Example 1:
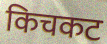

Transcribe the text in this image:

किचकट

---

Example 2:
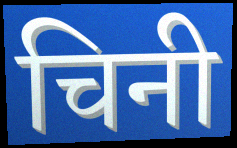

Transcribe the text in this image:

चिनी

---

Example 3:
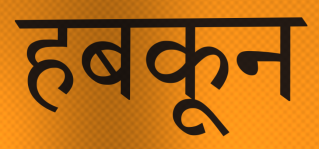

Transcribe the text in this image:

हबकून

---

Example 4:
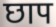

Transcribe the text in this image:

छाप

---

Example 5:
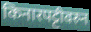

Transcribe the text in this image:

किनारपट्टीवरुन